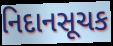
નિદાનસૂચક